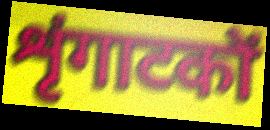
शृंगाटकों